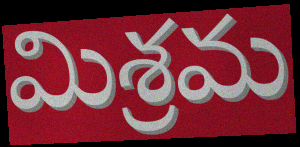
మిశ్రమ